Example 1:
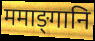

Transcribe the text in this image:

ममाङ्गानि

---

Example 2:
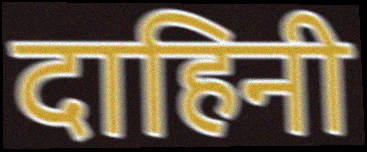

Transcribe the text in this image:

दाहिनी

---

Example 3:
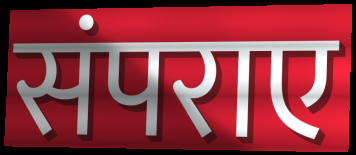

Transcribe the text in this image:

संपराए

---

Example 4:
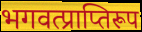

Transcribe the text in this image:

भगवत्प्राप्तिरूप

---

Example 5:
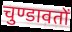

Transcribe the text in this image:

चुण्डावतों